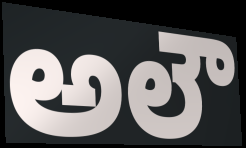
అలౌ